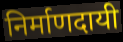
निर्माणदायी